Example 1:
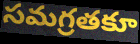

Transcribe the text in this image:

సమగ్రతకూ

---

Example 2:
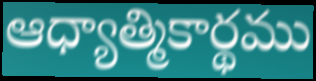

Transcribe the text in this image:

ఆధ్యాత్మికార్థము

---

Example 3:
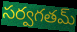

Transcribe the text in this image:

సర్వగతమ్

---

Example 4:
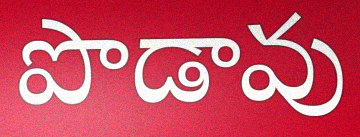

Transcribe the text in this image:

పొడావు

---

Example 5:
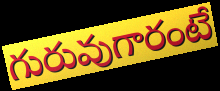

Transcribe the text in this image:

గురువుగారంటే